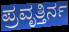
ಪ್ರವೃತ್ತಿರ್ನ